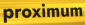
proximum